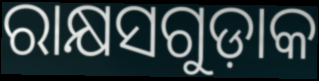
ରାକ୍ଷସଗୁଡ଼ାକ